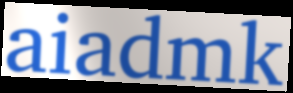
aiadmk